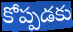
కోప్పడకు